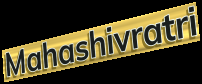
Mahashivratri